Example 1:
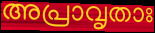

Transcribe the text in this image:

അപ്രാവൃതാഃ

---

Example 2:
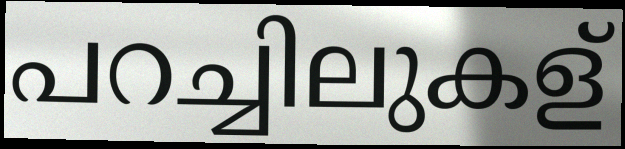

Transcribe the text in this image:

പറച്ചിലുകള്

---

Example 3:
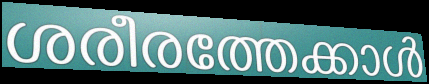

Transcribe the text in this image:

ശരീരത്തേക്കാൾ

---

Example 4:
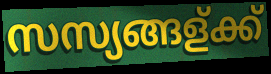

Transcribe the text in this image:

സസ്യങ്ങള്ക്ക്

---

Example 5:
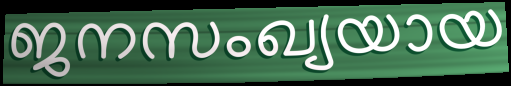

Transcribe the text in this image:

ജനസംഖ്യയായ